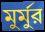
মুর্মুর